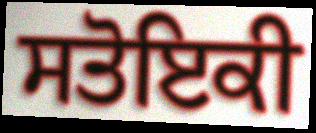
ਸਤੋਇਕੀ